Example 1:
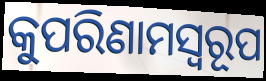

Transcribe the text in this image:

କୁପରିଣାମସ୍ୱରୂପ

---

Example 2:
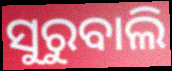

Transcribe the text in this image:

ସୁରୁବାଲି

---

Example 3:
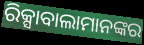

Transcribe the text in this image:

ରିକ୍ସାବାଲାମାନଙ୍କର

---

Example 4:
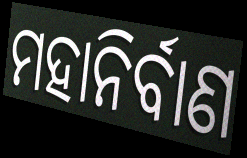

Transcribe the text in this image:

ମହାନିର୍ବାଣ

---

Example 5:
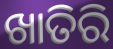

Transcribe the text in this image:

ଖାତିରି